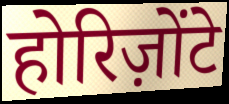
होरिज़ोंटे